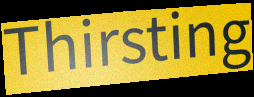
Thirsting